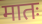
मातः